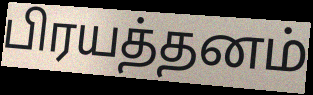
பிரயத்தனம்